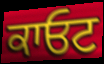
ਕਾਓਟ